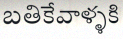
బతికేవాళ్ళకి